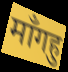
माँगहु